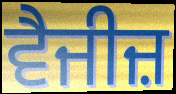
ਵੈਜੀਜ਼